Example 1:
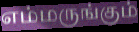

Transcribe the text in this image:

எம்மருங்கும்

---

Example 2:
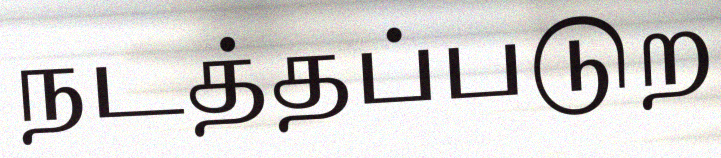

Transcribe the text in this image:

நடத்தப்படுற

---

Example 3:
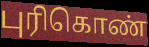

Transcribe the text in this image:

புரிகொண்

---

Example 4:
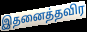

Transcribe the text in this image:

இதனைத்தவிர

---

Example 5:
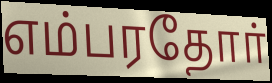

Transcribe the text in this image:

எம்பரதோர்